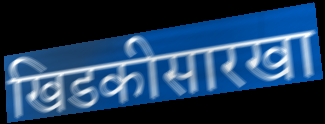
खिडकीसारखा